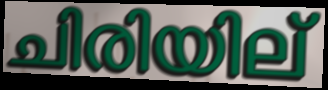
ചിരിയില്